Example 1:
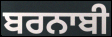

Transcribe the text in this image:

ਬਰਨਾਬੀ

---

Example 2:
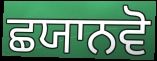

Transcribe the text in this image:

ਛਯਾਨਵੋ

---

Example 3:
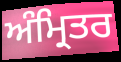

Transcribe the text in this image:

ਅੰਮ੍ਰਿਤਰ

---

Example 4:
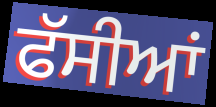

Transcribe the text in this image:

ਫੱਸੀਆਂ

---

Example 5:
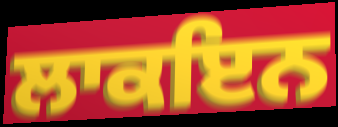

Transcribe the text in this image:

ਲਾਕਇਨ